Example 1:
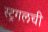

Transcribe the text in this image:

स्ट्रगलची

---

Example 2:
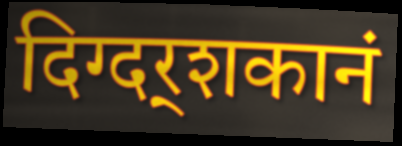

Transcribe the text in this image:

दिग्दर्शकानं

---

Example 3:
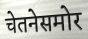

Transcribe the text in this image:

चेतनेसमोर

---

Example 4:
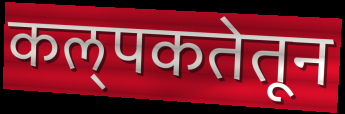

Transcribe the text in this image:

कल्पकतेतून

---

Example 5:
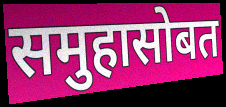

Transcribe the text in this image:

समुहासोबत